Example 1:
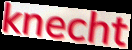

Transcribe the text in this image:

knecht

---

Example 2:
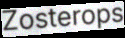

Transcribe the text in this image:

Zosterops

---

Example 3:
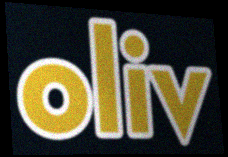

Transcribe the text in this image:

oliv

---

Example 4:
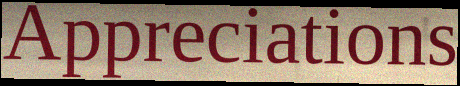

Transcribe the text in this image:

Appreciations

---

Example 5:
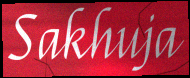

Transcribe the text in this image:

Sakhuja